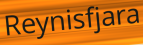
Reynisfjara